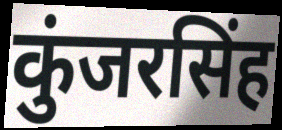
कुंजरसिंह